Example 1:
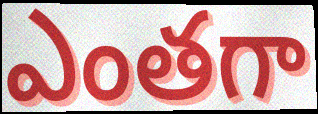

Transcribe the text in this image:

ఎంతగా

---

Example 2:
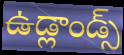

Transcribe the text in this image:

ఉడ్లాండ్స్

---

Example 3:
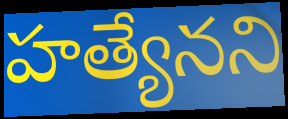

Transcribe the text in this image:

హత్యేనని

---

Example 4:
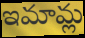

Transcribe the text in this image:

ఇమామ్ల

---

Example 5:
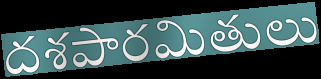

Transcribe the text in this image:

దశపారమితులు